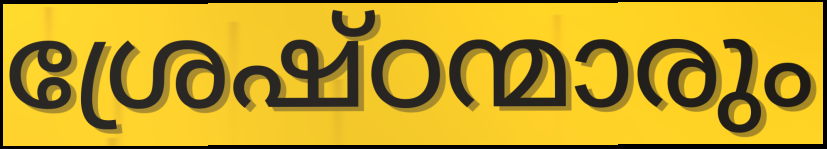
ശ്രേഷ്ഠന്മാരും